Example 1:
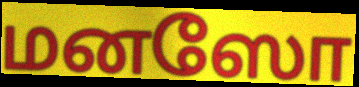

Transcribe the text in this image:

மனஸோ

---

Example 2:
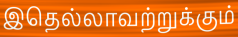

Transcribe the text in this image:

இதெல்லாவற்றுக்கும்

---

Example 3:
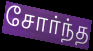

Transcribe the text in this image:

சோர்ந்த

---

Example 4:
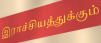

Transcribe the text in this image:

இராச்சியத்துக்கும்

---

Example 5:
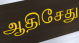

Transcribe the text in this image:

ஆதிசேது